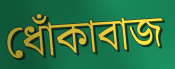
ধোঁকাবাজ